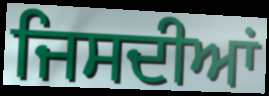
ਜਿਸਦੀਆਂ